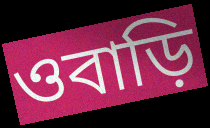
ওবাড়ি